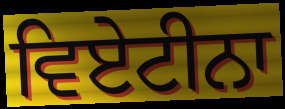
ਵਿਏਟੀਨਾ